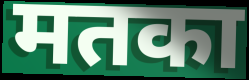
मतका